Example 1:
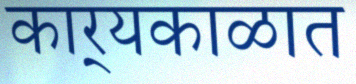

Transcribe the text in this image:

कार्यकाळात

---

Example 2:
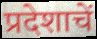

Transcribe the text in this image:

प्रदेशाचें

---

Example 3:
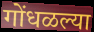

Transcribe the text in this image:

गोंधळल्या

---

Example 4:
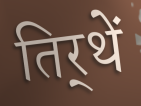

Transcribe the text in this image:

तिर्थें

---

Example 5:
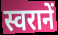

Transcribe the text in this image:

स्वरानें